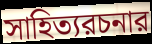
সাহিত্যরচনার